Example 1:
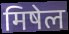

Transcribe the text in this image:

मिषेल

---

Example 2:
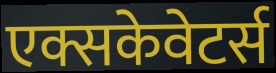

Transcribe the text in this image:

एक्सकेवेटर्स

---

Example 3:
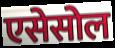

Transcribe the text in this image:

एसेसोल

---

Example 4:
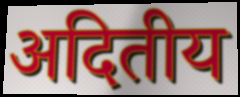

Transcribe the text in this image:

अदितीय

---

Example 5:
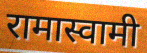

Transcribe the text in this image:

रामास्वामी